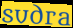
sudra